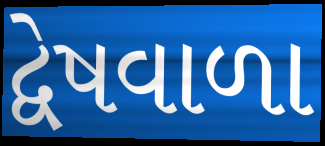
દ્વેષવાળા